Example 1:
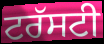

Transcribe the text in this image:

ਟਰੱਸਟੀ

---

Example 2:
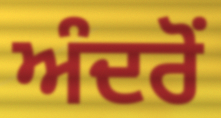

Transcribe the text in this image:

ਅੰਦਰੋਂ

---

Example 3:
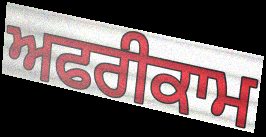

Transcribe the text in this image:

ਅਫਰੀਕਾਮ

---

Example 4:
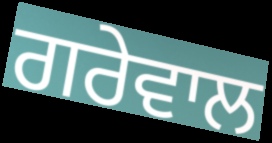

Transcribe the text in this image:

ਗਰੇਵਾਲ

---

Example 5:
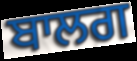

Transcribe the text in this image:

ਬਾਲਗ